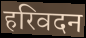
हरिवदन